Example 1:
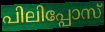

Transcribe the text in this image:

പിലിപ്പോസ്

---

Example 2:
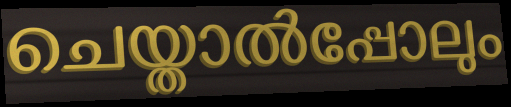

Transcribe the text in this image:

ചെയ്താൽപ്പോലും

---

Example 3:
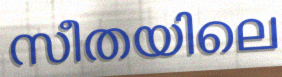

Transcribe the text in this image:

സീതയിലെ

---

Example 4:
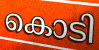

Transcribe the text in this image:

കൊടി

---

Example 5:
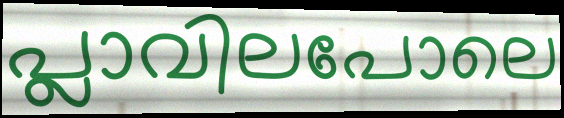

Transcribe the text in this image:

പ്ലാവിലപോലെ